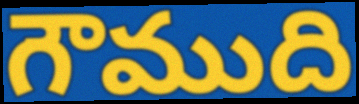
గౌముది